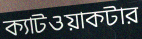
ক্যাটওয়াকটার